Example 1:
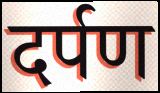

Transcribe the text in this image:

दर्पण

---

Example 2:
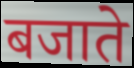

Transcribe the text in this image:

बजाते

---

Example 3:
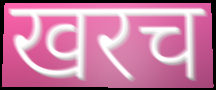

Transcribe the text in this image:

खरच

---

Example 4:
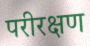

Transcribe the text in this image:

परीरक्षण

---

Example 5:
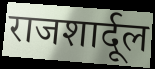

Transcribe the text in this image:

राजशार्दूल